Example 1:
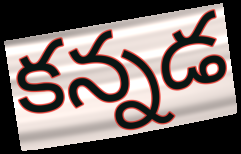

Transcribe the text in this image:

కన్నడ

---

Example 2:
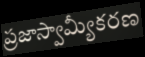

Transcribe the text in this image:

ప్రజాస్వామ్యీకరణ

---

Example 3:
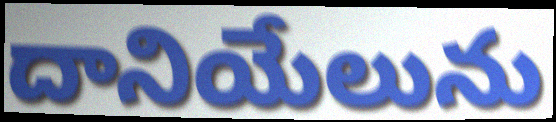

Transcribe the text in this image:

దానియేలును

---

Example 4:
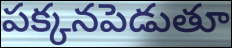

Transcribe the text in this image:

పక్కనపెడుతూ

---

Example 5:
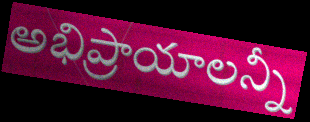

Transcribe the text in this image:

అభిప్రాయాలన్నీ